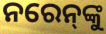
ନରେନ୍‍ଙ୍କୁ